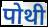
पोथी